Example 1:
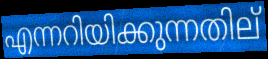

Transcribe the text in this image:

എന്നറിയിക്കുന്നതില്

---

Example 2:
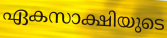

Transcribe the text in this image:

ഏകസാക്ഷിയുടെ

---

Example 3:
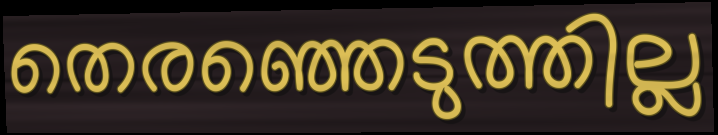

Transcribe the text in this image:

തെരഞ്ഞെടുത്തില്ല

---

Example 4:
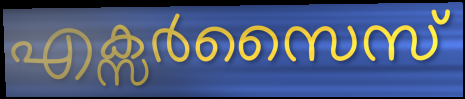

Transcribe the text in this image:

എക്സർസൈസ്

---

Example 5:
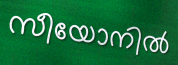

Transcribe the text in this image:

സീയോനിൽ